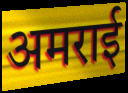
अमराई